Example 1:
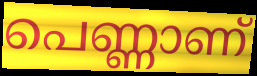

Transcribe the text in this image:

പെണ്ണാണ്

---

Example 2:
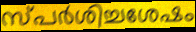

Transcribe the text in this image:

സ്പർശിച്ചശേഷം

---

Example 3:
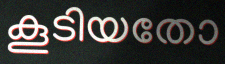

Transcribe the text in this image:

കൂടിയതോ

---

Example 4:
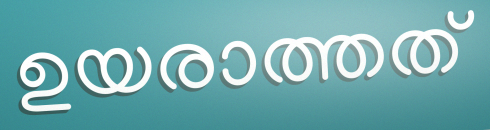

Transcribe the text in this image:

ഉയരാത്തത്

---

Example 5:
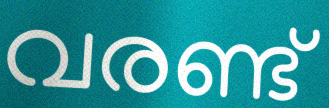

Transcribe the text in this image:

വരണ്ട്